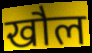
खौल